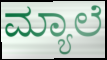
ಮ್ಯಾಲೆ